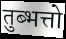
तुब्भत्तो